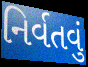
નિર્વતવું